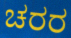
ಚರರ